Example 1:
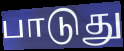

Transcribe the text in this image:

பாடுது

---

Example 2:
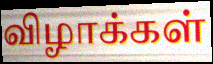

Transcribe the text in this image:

விழாக்கள்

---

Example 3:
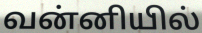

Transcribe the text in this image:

வன்னியில்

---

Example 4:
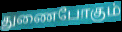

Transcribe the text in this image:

துணைபோகும்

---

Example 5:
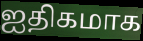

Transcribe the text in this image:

ஐதிகமாக